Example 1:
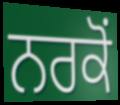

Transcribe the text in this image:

ਨਰਕੋਂ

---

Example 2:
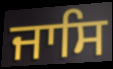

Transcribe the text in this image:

ਜਾਸਿ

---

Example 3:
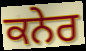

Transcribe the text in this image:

ਕਨੇਰ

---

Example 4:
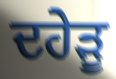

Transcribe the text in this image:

ਦਹੇੜੂ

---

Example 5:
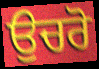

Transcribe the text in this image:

ਉਚਰੋ